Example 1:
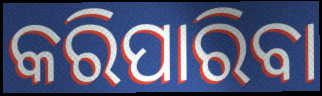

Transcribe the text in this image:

କରିପାରିବା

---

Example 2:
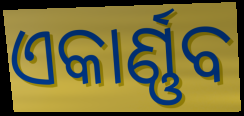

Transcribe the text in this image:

ଏକାର୍ଣ୍ଣବ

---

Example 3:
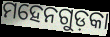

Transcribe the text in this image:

ମହେନଗୁଡ଼କା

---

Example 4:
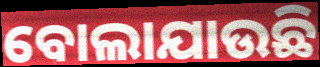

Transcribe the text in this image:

ବୋଲାଯାଉଛି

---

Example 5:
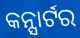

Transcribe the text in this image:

କନ୍ସାର୍ଟର